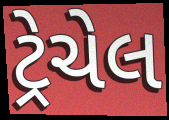
ટ્રેચેલ